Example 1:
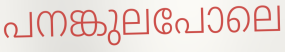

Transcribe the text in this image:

പനങ്കുലപോലെ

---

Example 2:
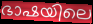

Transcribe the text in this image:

ഭാഷയിലെ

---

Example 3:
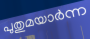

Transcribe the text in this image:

പുതുമയാർന്ന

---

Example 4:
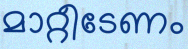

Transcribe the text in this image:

മാറ്റീടേണം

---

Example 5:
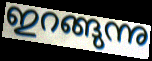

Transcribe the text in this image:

ഇറങ്ങുന്നു